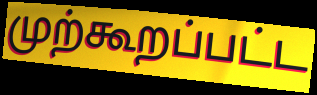
முற்கூறப்பட்ட